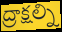
ద్రాక్షల్ని